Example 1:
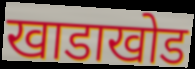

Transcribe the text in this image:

खाडाखोड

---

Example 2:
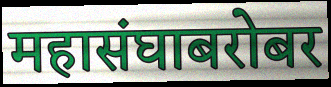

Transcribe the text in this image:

महासंघाबरोबर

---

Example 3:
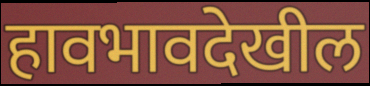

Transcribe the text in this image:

हावभावदेखील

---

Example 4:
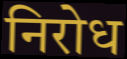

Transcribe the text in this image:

निरोध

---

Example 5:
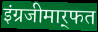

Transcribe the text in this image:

इंग्रजीमार्फत